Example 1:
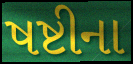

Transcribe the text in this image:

ષષ્ટીના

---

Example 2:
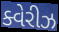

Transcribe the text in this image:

ક્વેરીઝ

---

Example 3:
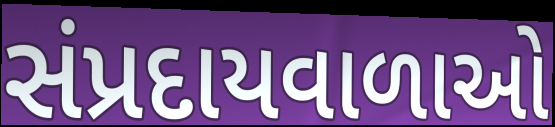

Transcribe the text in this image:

સંપ્રદાયવાળાઓ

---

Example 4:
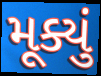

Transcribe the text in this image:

મૂક્યું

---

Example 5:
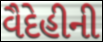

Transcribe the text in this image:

વૈદેહીની